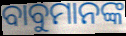
ବାବୁମାନଙ୍କ